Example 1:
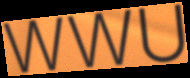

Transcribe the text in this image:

WWU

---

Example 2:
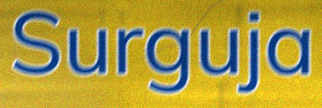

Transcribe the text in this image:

Surguja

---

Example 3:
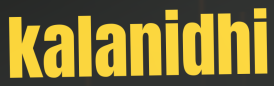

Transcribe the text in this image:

kalanidhi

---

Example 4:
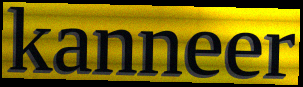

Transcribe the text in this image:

kanneer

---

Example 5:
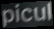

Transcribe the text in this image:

picul